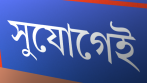
সুযোগেই